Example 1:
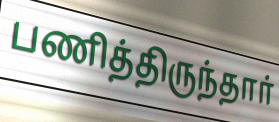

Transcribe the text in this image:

பணித்திருந்தார்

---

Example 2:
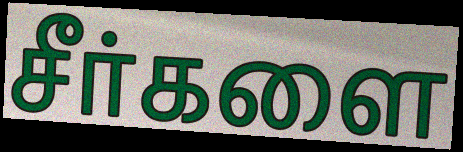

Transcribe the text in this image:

சீர்களை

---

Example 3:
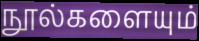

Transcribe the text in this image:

நூல்களையும்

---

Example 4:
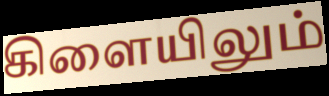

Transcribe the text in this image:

கிளையிலும்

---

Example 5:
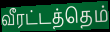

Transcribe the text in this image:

வீரட்டத்தெம்